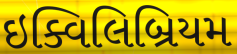
ઇક્વિલિબ્રિયમ